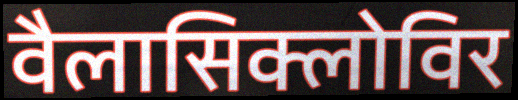
वैलासिक्लोविर